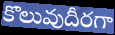
కొలువుదీరగా